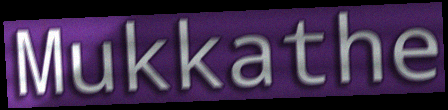
Mukkathe